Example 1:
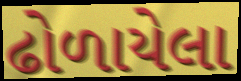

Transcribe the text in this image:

ઢોળાયેલા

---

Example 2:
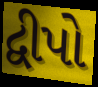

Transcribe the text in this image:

દ્વીપો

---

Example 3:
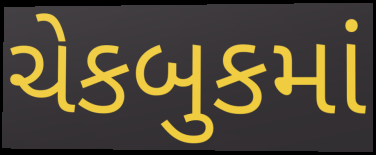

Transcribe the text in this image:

ચેકબુકમાં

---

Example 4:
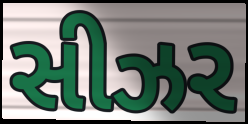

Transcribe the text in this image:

સીઝર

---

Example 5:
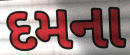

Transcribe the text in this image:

દમના